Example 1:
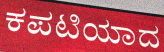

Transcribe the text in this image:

ಕಪಟಿಯಾದ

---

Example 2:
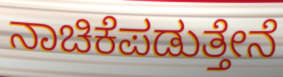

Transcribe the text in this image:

ನಾಚಿಕೆಪಡುತ್ತೇನೆ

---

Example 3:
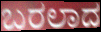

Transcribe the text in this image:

ಬರಲಾದ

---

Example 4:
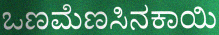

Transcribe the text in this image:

ಒಣಮೆಣಸಿನಕಾಯಿ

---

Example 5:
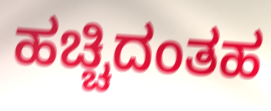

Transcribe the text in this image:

ಹಚ್ಚಿದಂತಹ